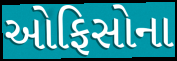
ઓફિસોના